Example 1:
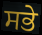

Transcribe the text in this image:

ਸਭੇ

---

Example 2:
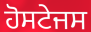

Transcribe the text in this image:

ਹੋਸਟੇਜਸ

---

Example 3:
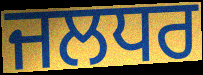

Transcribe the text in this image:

ਜਲਧਰ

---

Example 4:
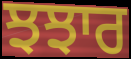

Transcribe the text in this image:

ਝਝਾਰ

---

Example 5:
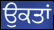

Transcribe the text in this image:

ਉਕਤਾਂ